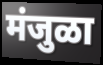
मंजुळा